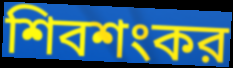
শিবশংকর